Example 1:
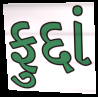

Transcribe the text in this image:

ફુદ્દાં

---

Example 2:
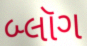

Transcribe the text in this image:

બ્લૉગ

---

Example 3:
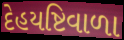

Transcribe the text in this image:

દેહયષ્ટિવાળા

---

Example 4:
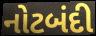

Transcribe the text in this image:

નોટબંદી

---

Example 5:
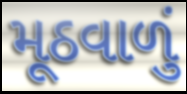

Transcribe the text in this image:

મૂઠવાળું